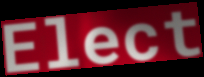
Elect